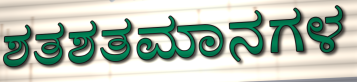
ಶತಶತಮಾನಗಳ